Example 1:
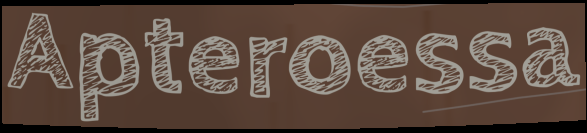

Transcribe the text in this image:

Apteroessa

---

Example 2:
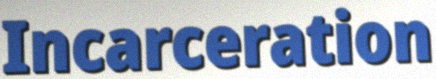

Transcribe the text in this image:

Incarceration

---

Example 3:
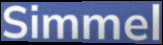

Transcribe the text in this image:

Simmel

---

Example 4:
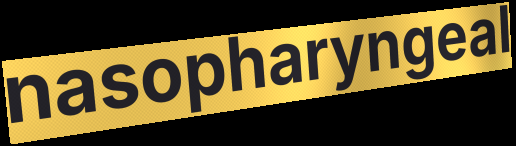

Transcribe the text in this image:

nasopharyngeal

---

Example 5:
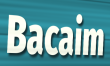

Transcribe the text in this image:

Bacaim